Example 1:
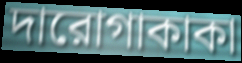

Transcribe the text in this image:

দারোগাকাকা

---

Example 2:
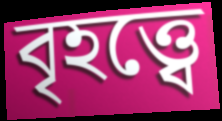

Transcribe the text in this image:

বৃহত্ত্বে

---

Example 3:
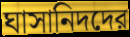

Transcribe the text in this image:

ঘাসানিদদের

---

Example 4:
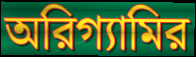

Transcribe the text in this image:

অরিগ্যামির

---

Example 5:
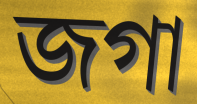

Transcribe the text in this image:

জগা